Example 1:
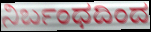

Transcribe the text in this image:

ನಿರ್ಬಂಧದಿಂದ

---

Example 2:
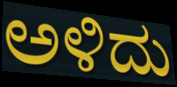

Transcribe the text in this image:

ಅಳಿದು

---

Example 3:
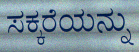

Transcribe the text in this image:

ಸಕ್ಕರೆಯನ್ನು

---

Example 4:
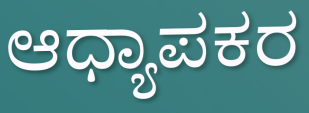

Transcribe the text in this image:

ಆಧ್ಯಾಪಕರ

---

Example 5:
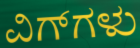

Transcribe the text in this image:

ವಿಗ್‌ಗಳು